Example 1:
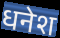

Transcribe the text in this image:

धनेश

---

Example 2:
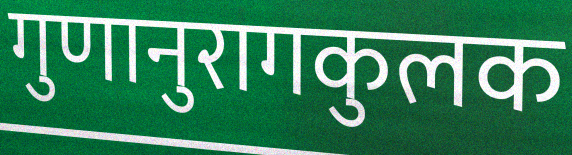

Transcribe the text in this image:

गुणानुरागकुलक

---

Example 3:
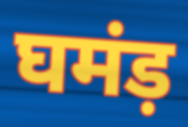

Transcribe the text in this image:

घमंड़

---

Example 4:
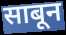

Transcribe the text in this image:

साबून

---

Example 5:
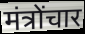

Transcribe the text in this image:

मंत्रोंचार